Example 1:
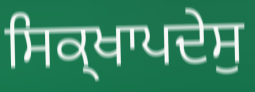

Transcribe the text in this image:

ਸਿਕ੍ਖਾਪਦੇਸੁ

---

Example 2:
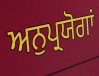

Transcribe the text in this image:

ਅਨੁਪ੍ਰਯੋਗਾਂ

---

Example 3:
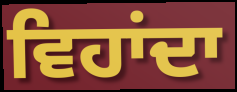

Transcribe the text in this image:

ਵਿਹਾਂਦਾ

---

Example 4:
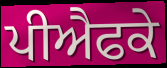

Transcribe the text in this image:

ਪੀਐਫਕੇ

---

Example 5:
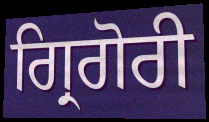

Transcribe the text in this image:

ਗ੍ਰਿਗੋਰੀ